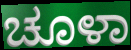
ಚೂಳಾ